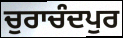
ਚੁਰਾਚੰਦਪੁਰ